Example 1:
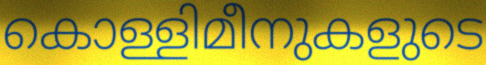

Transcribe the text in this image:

കൊള്ളിമീനുകളുടെ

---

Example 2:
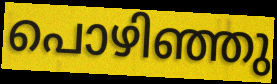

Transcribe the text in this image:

പൊഴിഞ്ഞു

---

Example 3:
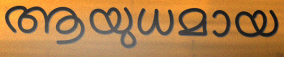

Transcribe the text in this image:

ആയുധമായ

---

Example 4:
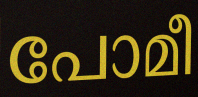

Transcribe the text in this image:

പോമീ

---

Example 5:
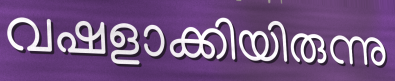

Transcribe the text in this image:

വഷളാക്കിയിരുന്നു